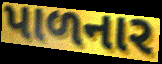
પાળનાર